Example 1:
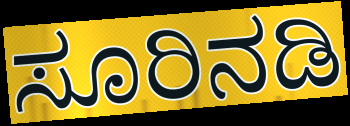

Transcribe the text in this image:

ಸೂರಿನಡಿ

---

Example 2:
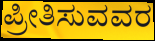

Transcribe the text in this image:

ಪ್ರೀತಿಸುವವರ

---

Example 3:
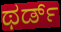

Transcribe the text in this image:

ಥರ್ಡ್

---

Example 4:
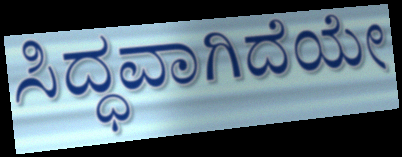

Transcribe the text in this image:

ಸಿದ್ಧವಾಗಿದೆಯೇ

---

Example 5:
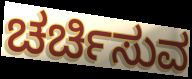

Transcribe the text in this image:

ಚರ್ಚಿಸುವ